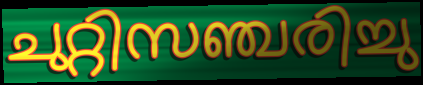
ചുറ്റിസഞ്ചരിച്ചു